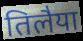
तिलैया